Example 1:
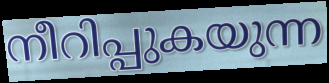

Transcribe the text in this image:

നീറിപ്പുകയുന്ന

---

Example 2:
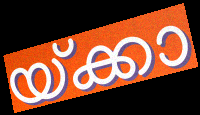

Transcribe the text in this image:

യ്‌ക്കാ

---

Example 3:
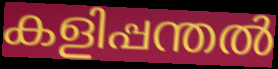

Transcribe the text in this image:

കളിപ്പന്തൽ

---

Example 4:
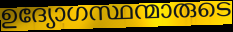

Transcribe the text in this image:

ഉദ്യോഗസ്ഥന്മാരുടെ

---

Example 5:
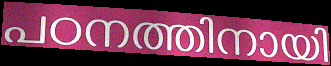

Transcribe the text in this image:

പഠനത്തിനായി